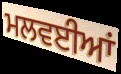
ਮਲਵਈਆਂ